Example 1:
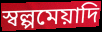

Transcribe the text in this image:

স্বল্পমেয়াদি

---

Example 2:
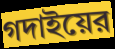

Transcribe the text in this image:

গদাইয়ের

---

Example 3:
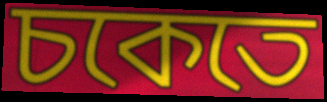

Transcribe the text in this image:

চকেতে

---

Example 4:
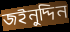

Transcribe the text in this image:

জইনুদ্দিন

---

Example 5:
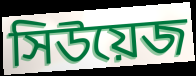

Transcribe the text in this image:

সিউয়েজ